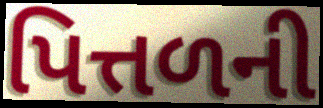
પિત્તળની